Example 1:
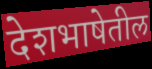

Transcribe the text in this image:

देशभाषेतील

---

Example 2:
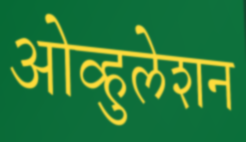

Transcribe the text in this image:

ओव्हुलेशन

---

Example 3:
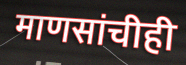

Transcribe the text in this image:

माणसांचीही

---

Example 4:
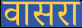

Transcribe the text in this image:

वासरा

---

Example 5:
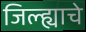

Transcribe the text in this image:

जिल्ह्याचे